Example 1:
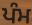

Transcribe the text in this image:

ਪੰਮ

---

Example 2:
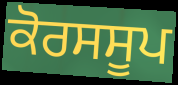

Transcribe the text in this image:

ਕੋਰਸਸੂਪ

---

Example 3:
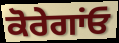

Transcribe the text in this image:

ਕੋਰੇਗਾਂਓ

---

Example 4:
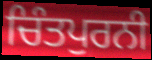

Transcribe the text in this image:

ਚਿੰਤਪੁਰਨੀ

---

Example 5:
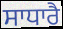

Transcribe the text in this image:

ਸਾਧਾਰੈ